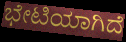
ಭೇಟಿಯಾಗಿದೆ